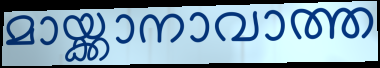
മായ്ക്കാനാവാത്ത